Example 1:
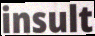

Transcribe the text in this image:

insult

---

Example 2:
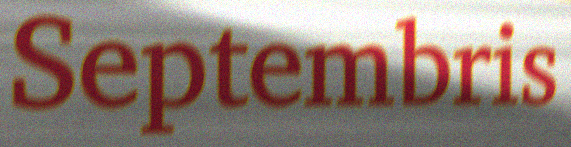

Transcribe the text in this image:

Septembris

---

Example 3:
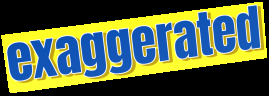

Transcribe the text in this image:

exaggerated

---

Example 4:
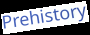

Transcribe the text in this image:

Prehistory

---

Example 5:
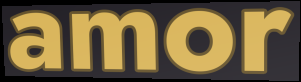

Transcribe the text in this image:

amor